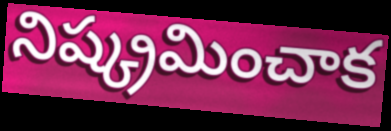
నిష్క్రమించాక